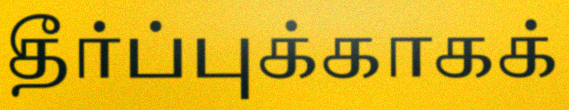
தீர்ப்புக்காகக்